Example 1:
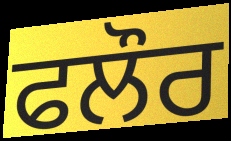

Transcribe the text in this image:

ਫਲੌਰ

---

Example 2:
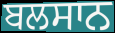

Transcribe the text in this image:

ਬਲਸਾਨ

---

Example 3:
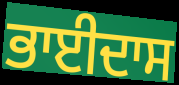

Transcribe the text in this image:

ਭਾਈਦਾਸ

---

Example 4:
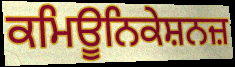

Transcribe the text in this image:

ਕਮਿਊਨਿਕੇਸ਼ਨਜ਼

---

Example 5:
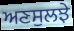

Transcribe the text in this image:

ਅਣਸੁਲਝੇ